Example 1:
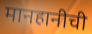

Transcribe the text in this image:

मानहानीची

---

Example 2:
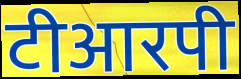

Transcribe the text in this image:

टीआरपी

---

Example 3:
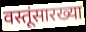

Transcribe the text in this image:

वस्तूंसारख्या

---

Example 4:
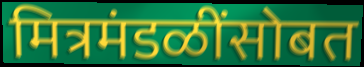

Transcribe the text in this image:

मित्रमंडळींसोबत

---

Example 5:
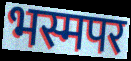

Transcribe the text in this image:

भस्मपर